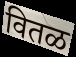
वितळ